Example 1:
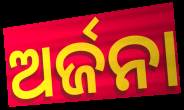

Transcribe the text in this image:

ଅର୍ଜନା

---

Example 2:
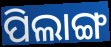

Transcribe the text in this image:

ପିଲାଙ୍ଗ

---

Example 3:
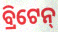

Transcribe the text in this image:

ବ୍ରିଟେନ୍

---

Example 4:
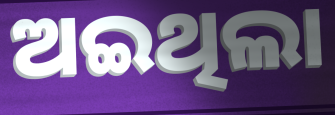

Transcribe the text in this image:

ଅଇଥିଲା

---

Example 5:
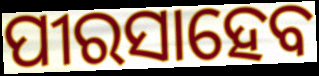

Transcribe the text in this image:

ପୀରସାହେବ